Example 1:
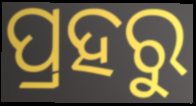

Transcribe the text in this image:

ପ୍ରହରୁ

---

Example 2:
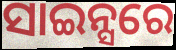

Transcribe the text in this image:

ସାଇନ୍ସରେ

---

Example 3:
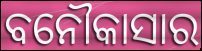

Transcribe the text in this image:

ବନୌକାସାର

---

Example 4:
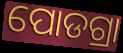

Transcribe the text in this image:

ପୋଡଗ୍ରା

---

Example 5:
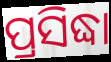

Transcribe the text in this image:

ପ୍ରସିଦ୍ଧା